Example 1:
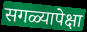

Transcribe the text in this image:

सगळ्यापेक्षा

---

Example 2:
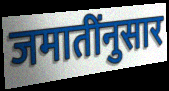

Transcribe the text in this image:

जमातींनुसार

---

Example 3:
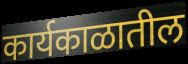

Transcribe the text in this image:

कार्यकाळातील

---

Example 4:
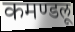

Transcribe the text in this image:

कमण्डलू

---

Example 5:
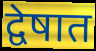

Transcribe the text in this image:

द्वेषात